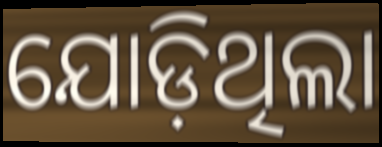
ଯୋଡ଼ିଥିଲା